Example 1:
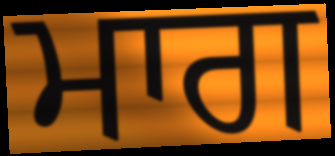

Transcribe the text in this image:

ਮਾਗ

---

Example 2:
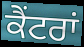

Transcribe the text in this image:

ਕੈਂਟਰਾਂ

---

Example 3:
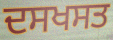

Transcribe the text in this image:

ਦਸਖਸਤ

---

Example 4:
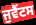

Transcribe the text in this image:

ਜੁਵੈਂਟਸ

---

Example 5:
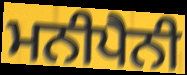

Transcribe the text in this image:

ਮਨੀਪੈਨੀ